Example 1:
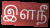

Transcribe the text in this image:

இளநீ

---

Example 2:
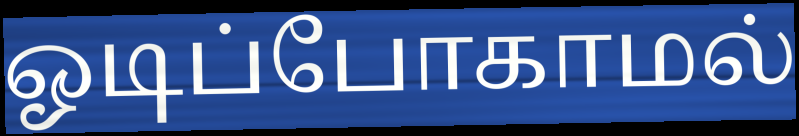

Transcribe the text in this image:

ஓடிப்போகாமல்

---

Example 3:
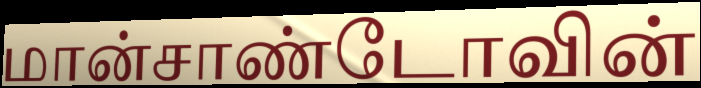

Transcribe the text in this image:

மான்சாண்டோவின்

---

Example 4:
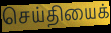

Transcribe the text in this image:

செய்தியைக்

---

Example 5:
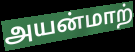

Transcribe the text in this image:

அயன்மாற்